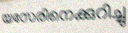
യസേരിനെക്കുറിച്ചു